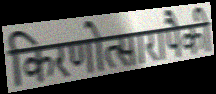
किरणोत्सारापैकी